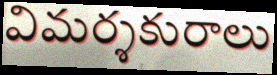
విమర్శకురాలు